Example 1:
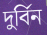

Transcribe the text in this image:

দুর্বিন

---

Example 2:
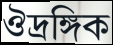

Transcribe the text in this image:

ঔদ্রঙ্গিক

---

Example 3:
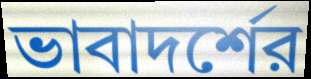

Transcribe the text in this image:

ভাবাদর্শের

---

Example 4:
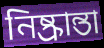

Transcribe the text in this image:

নিষ্ক্রান্তা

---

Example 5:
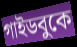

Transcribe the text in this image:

গাইডবুকে